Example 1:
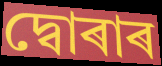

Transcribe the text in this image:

দ্বোৰাৰ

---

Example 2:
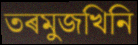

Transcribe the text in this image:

তৰমুজখিনি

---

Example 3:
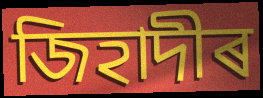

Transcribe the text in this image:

জিহাদীৰ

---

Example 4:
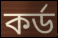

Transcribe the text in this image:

কৰ্ড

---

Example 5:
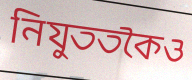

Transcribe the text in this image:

নিযুততকৈও